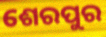
ଶେରପୁର